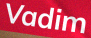
Vadim